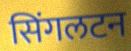
सिंगलटन